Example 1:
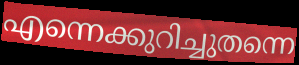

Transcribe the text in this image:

എന്നെക്കുറിച്ചുതന്നെ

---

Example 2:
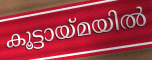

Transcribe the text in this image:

കൂട്ടായ്മയിൽ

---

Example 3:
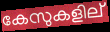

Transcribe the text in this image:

കേസുകളില്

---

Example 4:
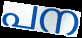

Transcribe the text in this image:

പന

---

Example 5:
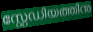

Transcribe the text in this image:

സ്റ്റേഡിയത്തിനു